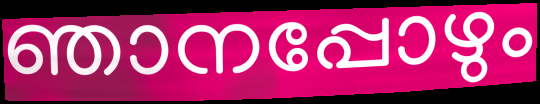
ഞാനപ്പോഴും